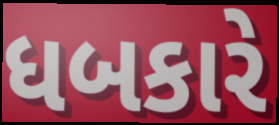
ધબકારે